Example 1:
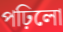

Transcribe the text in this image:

পঢ়িলো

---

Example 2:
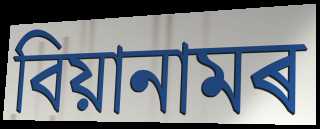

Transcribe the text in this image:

বিয়ানামৰ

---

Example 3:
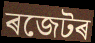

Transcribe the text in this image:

ৰজেটৰ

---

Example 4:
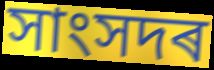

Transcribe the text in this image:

সাংসদৰ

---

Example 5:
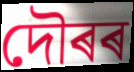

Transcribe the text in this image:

দৌৰৰ